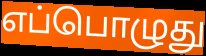
எப்பொழுது